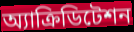
অ্যাক্রিডিটেশন